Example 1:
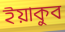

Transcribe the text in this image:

ইয়াকুব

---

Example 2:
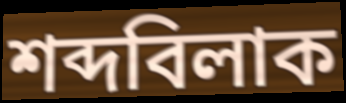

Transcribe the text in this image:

শব্দবিলাক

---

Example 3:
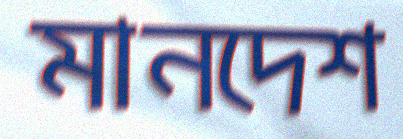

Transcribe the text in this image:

মানদেশ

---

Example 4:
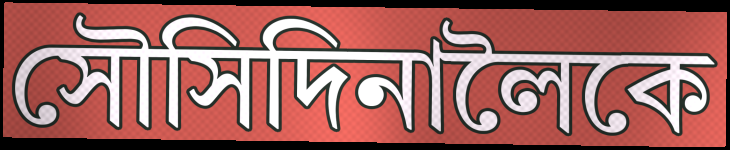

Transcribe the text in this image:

সৌসিদিনালৈকে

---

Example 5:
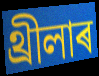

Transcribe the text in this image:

থ্ৰীলাৰ